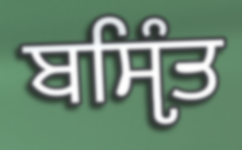
ਬਸੵਿੰਤ